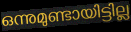
ഒന്നുമുണ്ടായിട്ടില്ല